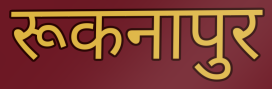
रूकनापुर